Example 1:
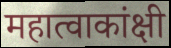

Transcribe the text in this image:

महात्वाकांक्षी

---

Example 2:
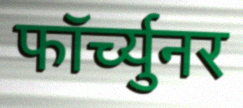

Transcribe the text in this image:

फॉर्च्युनर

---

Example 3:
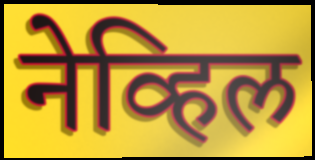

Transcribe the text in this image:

नेव्हिल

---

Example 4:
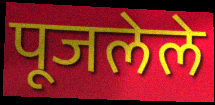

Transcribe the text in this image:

पूजलेले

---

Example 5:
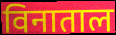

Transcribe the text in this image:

विनाताल